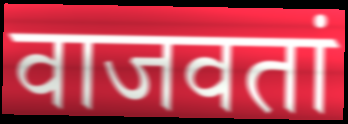
वाजवतां